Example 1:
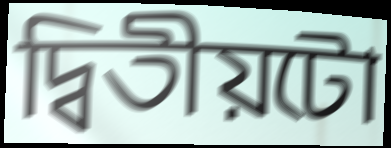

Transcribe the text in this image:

দ্বিতীয়টো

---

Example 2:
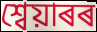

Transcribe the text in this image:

শ্বেয়াৰৰ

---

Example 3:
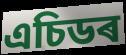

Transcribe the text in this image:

এচিডৰ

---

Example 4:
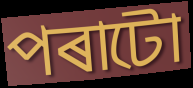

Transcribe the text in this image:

পৰাটো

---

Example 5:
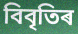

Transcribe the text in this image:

বিবৃতিৰ